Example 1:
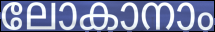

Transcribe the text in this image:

ലോകാനാം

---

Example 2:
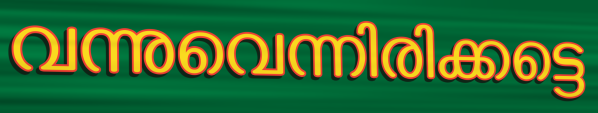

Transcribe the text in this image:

വന്നുവെന്നിരിക്കട്ടെ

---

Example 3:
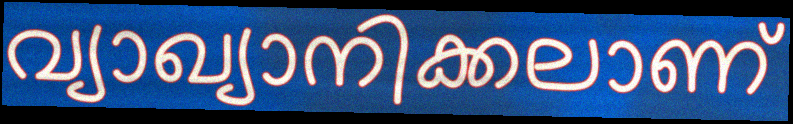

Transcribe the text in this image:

വ്യാഖ്യാനിക്കലാണ്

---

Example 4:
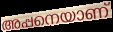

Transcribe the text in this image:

അപ്പനെയാണ്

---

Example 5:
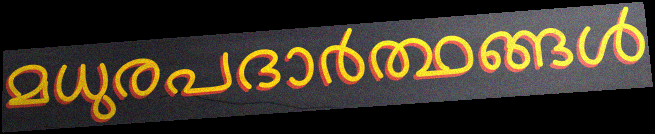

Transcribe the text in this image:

മധുരപദാർത്ഥങ്ങൾ